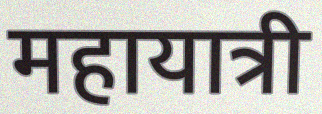
महायात्री